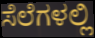
ಸೆಲೆಗಳಲ್ಲಿ